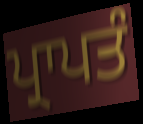
ਪ੍ਰਾਪਤੰ